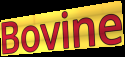
Bovine